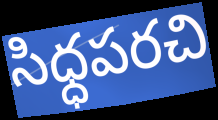
సిధ్ధపరచి